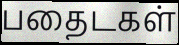
பதைடகள்